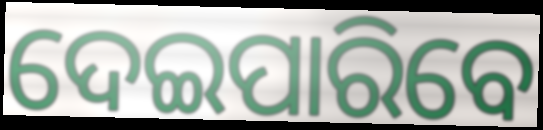
ଦେଇପାରିବେ